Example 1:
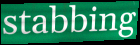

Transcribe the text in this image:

stabbing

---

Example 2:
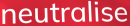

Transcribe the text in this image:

neutralise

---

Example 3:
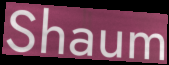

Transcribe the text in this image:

Shaum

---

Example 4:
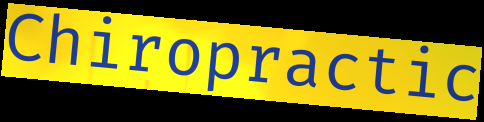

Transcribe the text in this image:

Chiropractic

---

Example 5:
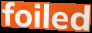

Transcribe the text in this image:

foiled